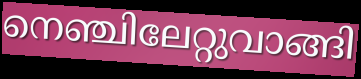
നെഞ്ചിലേറ്റുവാങ്ങി